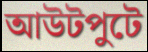
আউটপুটে